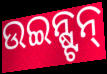
ଉଇନ୍ଷ୍ଟନ୍